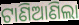
ଟାଣିଆଣିଲା